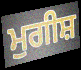
ਮੁਗੀਸ਼